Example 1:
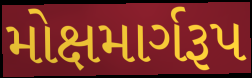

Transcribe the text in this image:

મોક્ષમાર્ગરૂપ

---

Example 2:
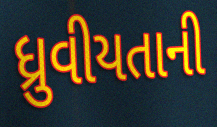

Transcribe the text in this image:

ધ્રુવીયતાની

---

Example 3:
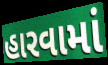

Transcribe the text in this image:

હારવામાં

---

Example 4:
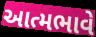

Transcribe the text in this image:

આત્મભાવે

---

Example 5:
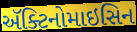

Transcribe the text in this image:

ઍક્ટિનોમાઇસિન